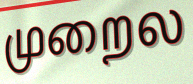
முறைல